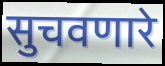
सुचवणारे